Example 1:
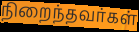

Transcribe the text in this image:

நிறைந்தவர்கள்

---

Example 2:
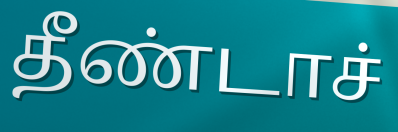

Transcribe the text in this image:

தீண்டாச்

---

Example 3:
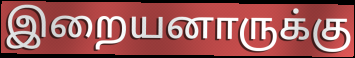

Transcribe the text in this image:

இறையனாருக்கு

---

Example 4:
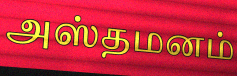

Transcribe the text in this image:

அஸ்தமனம்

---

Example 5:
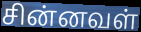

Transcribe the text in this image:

சின்னவள்